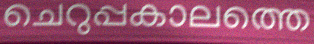
ചെറുപ്പകാലത്തെ